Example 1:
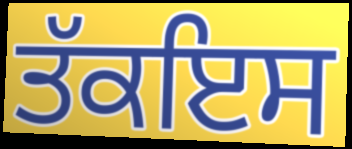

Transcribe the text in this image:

ਤੱਕਇਸ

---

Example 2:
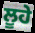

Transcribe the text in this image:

ਲੂਹੇ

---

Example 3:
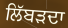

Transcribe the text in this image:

ਲਿੱਬੜਦਾ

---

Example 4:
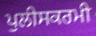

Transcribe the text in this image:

ਪੁਲੀਸਕਰਮੀ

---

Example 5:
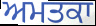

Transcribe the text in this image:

ਅਮਤਕਾ